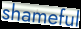
shameful